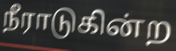
நீராடுகின்ற